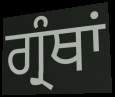
ਗ੍ਰੰਥਾਂ